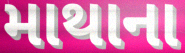
માથાના